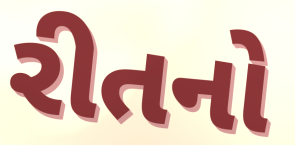
રીતનો